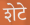
शेटे